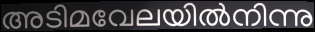
അടിമവേലയിൽനിന്നു